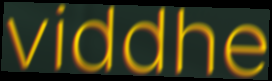
viddhe